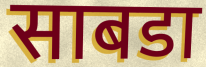
साबडा